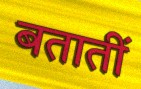
बतातीं